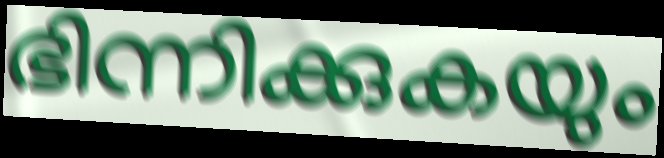
ഭിന്നിക്കുകയും